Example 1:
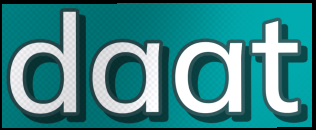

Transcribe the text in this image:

daat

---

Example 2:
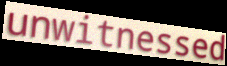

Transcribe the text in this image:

unwitnessed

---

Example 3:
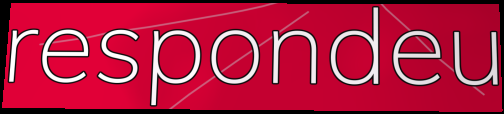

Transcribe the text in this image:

respondeu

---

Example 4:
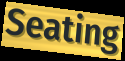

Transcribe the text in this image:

Seating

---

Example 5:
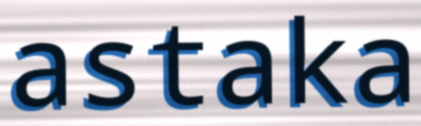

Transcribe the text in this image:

astaka